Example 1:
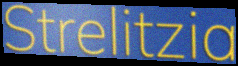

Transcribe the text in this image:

Strelitzia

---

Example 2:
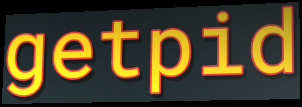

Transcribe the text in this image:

getpid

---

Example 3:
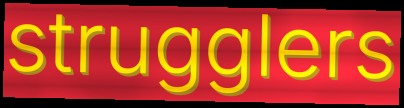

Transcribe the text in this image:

strugglers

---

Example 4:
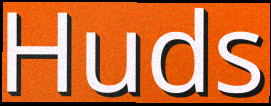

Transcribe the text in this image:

Huds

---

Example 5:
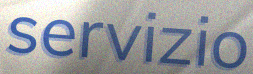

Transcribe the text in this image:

servizio